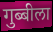
गुब्बीला